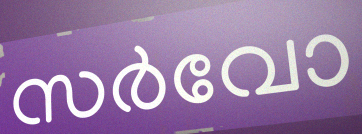
സർവോ